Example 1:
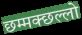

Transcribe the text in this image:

छम्मक्छल्लो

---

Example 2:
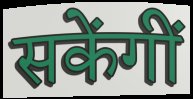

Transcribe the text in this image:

सकेंगीं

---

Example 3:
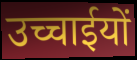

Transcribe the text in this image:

उच्चाईयों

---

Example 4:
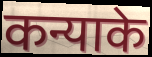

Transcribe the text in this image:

कन्याके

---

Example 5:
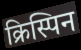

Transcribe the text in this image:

क्रिस्पिन